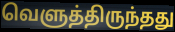
வெளுத்திருந்தது